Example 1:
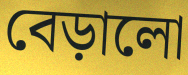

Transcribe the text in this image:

বেড়ালো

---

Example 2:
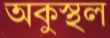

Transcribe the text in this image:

অকুস্থল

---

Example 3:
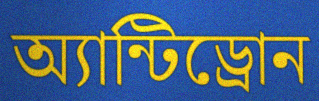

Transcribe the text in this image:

অ্যান্টিড্রোন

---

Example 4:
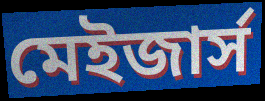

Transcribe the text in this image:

মেইজার্স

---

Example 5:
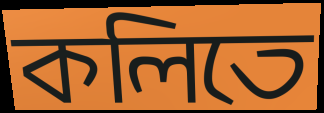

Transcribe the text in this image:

কলিতে